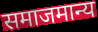
समाजमान्य